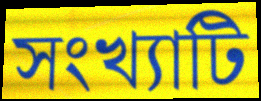
সংখ্যাটি